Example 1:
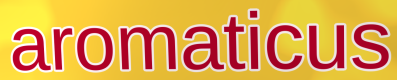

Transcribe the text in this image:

aromaticus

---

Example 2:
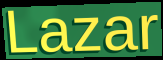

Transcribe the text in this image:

Lazar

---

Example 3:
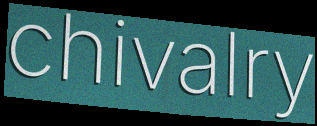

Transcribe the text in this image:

chivalry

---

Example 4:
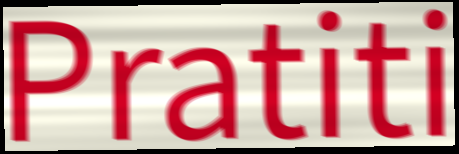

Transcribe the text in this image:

Pratiti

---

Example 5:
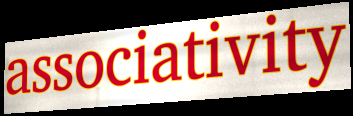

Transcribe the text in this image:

associativity